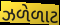
ઝળેળાટ